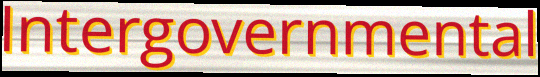
Intergovernmental